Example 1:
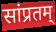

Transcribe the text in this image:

सांप्रतम्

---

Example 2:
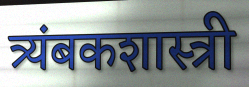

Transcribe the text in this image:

त्र्यंबकशास्त्री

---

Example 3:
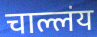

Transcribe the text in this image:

चाल्लंय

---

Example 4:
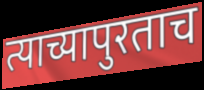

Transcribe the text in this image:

त्याच्यापुरताच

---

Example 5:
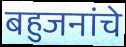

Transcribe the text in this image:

बहुजनांचे